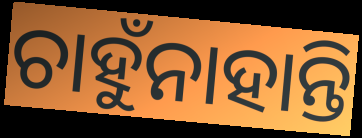
ଚାହୁଁନାହାନ୍ତି